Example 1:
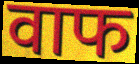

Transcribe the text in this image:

वाफ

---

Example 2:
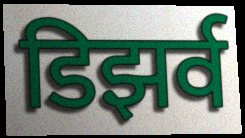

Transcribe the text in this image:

डिझर्व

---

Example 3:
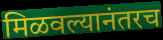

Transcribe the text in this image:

मिळवल्यानंतरच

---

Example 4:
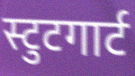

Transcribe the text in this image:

स्टुटगार्ट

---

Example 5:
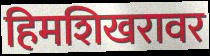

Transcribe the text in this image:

हिमशिखरावर